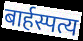
बार्हस्पत्य